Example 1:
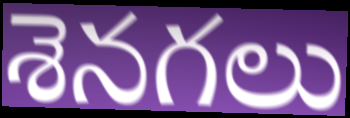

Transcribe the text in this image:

శెనగలు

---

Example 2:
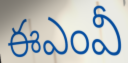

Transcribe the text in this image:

ఈఎంవీ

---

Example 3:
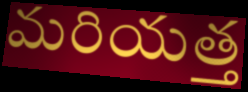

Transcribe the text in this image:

మరియత్త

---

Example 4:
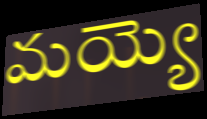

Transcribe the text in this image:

మయ్యె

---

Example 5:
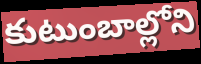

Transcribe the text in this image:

కుటుంబాల్లోని